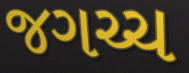
જગચ્ચ